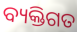
ବ୍ୟକ୍ତିଗତ